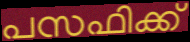
പസഫിക്ക്